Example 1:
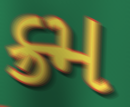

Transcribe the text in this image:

ક્ર્મ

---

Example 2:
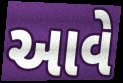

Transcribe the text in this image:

આવે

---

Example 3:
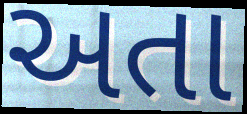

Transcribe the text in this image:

અતા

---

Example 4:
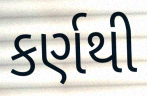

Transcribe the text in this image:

કર્ણથી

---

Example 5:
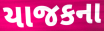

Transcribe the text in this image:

યાજકના